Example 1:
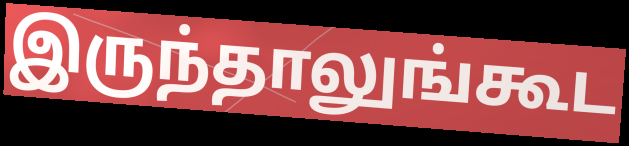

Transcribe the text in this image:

இருந்தாலுங்கூட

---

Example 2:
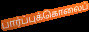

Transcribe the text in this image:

பார்ப்புக்கொலைப்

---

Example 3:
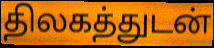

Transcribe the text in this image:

திலகத்துடன்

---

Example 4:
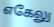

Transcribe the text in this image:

எகேலு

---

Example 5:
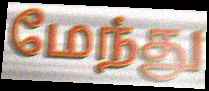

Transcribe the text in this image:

மேந்து